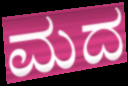
ಮದ